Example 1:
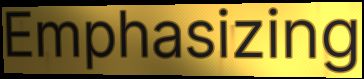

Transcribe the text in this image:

Emphasizing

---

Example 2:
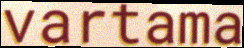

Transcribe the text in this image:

vartama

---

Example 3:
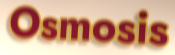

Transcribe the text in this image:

Osmosis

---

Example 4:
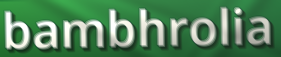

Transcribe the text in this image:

bambhrolia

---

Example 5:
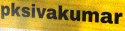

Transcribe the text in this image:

pksivakumar